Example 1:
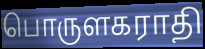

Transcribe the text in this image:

பொருளகராதி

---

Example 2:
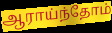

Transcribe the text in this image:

ஆராய்ந்தோம்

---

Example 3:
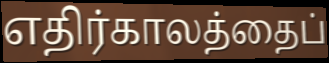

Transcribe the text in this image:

எதிர்காலத்தைப்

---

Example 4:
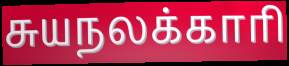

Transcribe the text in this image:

சுயநலக்காரி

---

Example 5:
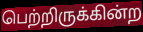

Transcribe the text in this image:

பெற்றிருக்கின்ற